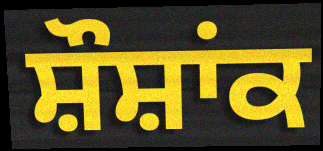
ਸ਼ੌਸ਼ਾਂਕ